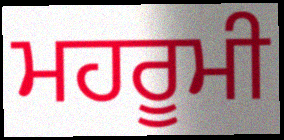
ਮਹਰੂਮੀ